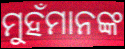
ମୁହଁମାନଙ୍କ